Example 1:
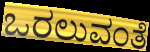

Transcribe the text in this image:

ಒರಲುವಂತೆ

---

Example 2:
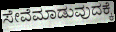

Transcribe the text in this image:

ಸೇವೆಮಾಡುವುದಕ್ಕೆ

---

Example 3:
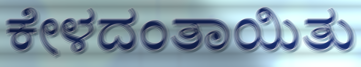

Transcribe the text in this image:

ಕೇಳದಂತಾಯಿತು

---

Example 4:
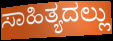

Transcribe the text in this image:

ಸಾಹಿತ್ಯದಲ್ಲು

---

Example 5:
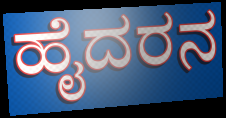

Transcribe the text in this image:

ಹೈದರನ